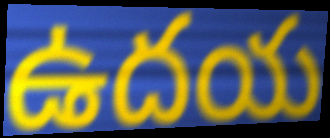
ఉదయ